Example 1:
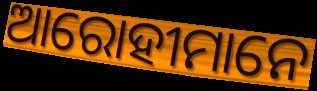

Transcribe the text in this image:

ଆରୋହୀମାନେ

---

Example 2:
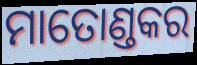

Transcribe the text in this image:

ମାତୋଣ୍ଡକର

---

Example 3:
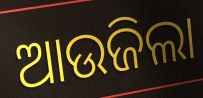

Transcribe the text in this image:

ଆଉଜିଲା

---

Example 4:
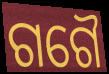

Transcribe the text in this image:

ଗଗୈ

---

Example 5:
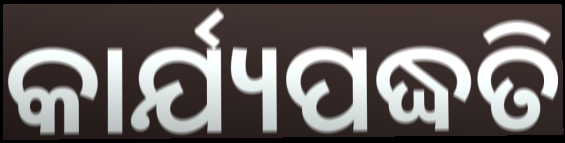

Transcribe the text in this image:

କାର୍ଯ୍ୟପଦ୍ଧତି